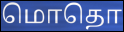
மொதொ